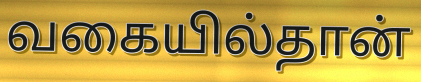
வகையில்தான்